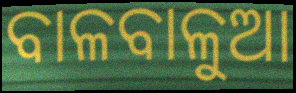
ବାଳବାଳୁଆ